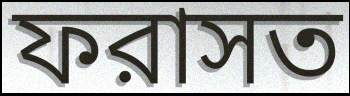
ফরাসত